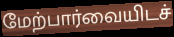
மேற்பார்வையிடச்